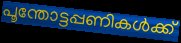
പൂന്തോട്ടപ്പണികൾക്ക്